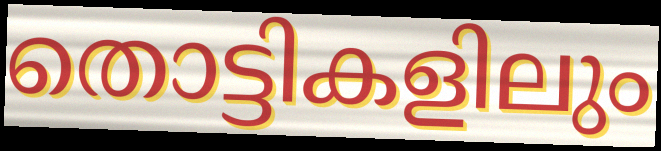
തൊട്ടികളിലും